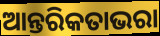
ଆନ୍ତରିକତାଭରା